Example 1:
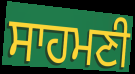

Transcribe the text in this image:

ਸਾਹਮਣੀ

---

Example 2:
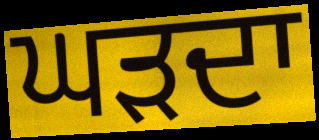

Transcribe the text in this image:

ਘੜਦਾ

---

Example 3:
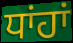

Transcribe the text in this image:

ਧਾਂਹਾਂ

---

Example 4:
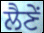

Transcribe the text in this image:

ਲੈਣੇਂ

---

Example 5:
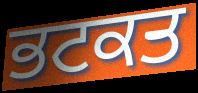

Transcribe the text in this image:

ਭਟਕਤ